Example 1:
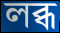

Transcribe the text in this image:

লব্ধ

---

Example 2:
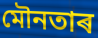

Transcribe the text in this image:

মৌনতাৰ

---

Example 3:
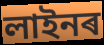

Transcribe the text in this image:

লাইনৰ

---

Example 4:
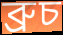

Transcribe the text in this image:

ব্ৰুচ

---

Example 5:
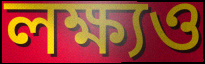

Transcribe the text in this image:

লক্ষ্যও